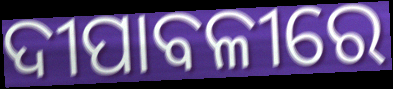
ଦୀପାବଳୀରେ